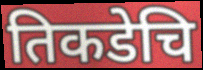
तिकडेचि